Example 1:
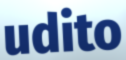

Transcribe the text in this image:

udito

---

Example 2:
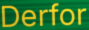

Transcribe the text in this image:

Derfor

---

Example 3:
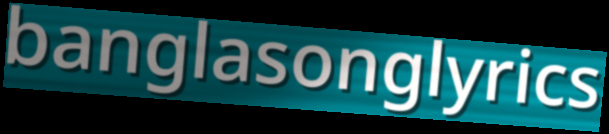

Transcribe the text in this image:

banglasonglyrics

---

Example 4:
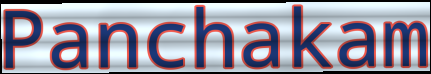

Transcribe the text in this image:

Panchakam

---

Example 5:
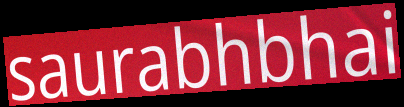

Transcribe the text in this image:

saurabhbhai